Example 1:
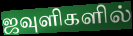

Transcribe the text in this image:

ஜவுளிகளில்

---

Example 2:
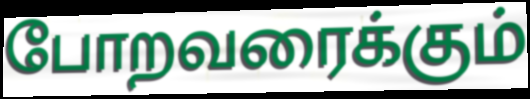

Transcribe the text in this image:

போறவரைக்கும்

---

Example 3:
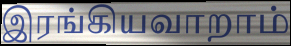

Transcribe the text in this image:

இரங்கியவாறாம்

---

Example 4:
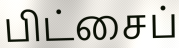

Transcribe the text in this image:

பிட்சைப்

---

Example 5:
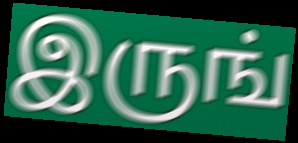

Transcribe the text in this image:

இருங்